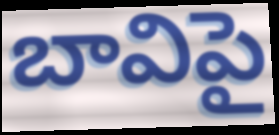
బావిపై